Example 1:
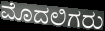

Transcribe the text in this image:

ಮೊದಲಿಗರು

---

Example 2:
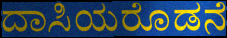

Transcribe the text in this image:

ದಾಸಿಯರೊಡನೆ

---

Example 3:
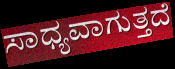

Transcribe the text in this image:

ಸಾಧ್ಯವಾಗುತ್ತದೆ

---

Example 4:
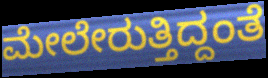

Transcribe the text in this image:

ಮೇಲೇರುತ್ತಿದ್ದಂತೆ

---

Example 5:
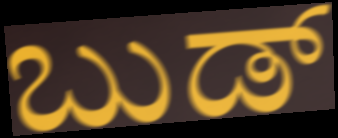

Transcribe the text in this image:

ಬುಡ್